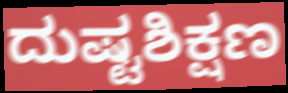
ದುಷ್ಟಶಿಕ್ಷಣ